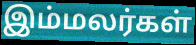
இம்மலர்கள்